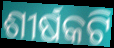
ଶୀର୍ଷକଟି